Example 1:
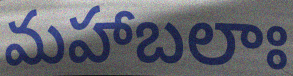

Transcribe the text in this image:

మహాబలాః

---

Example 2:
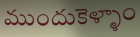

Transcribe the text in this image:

ముందుకెళ్ళాం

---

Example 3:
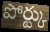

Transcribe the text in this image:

పోర్ట్కు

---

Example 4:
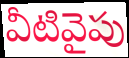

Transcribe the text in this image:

వీటివైపు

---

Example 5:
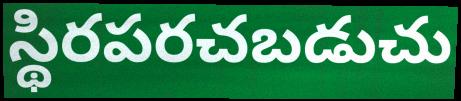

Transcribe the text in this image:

స్థిరపరచబడుచు